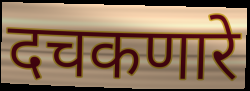
दचकणारे